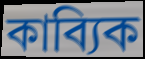
কাব্যিক